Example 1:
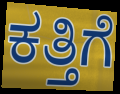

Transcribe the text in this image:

ಕತ್ತಿಗೆ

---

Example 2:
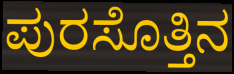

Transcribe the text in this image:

ಪುರಸೊತ್ತಿನ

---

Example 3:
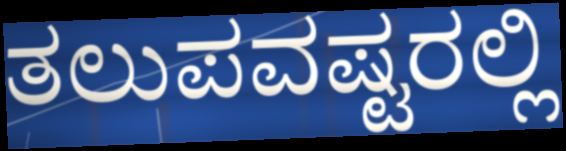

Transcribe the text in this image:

ತಲುಪವಷ್ಟರಲ್ಲಿ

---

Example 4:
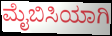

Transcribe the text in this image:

ಮೈಬಿಸಿಯಾಗಿ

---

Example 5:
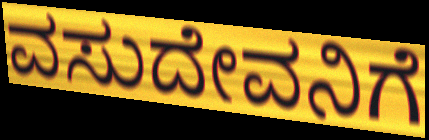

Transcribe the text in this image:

ವಸುದೇವನಿಗೆ